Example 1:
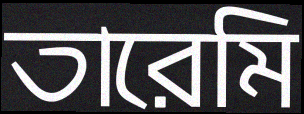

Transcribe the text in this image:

তারেমি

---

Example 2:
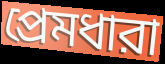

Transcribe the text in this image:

প্রেমধারা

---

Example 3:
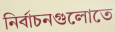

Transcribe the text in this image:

নির্বাচনগুলোতে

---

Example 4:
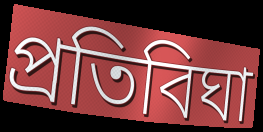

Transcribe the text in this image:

প্রতিবিঘা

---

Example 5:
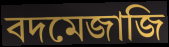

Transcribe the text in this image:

বদমেজাজি